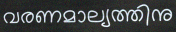
വരണമാല്യത്തിനു